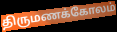
திருமணக்கோலம்